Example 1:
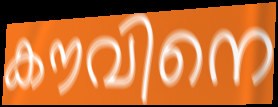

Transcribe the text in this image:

കൗവിനെ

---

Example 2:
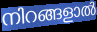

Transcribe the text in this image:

നിറങ്ങളാൽ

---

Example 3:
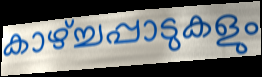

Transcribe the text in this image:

കാഴ്ച്ചപ്പാടുകളും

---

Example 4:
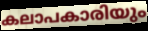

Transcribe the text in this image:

കലാപകാരിയും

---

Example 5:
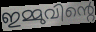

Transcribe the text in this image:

ഇമ്മുവിന്റെ